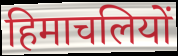
हिमाचलियों